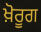
ਖ਼ੋਰੂਗ